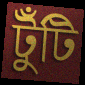
টুঁটি